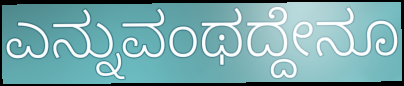
ಎನ್ನುವಂಥದ್ದೇನೂ